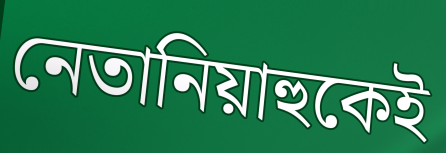
নেতানিয়াহুকেই